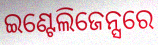
ଇଣ୍ଟେଲିଜେନ୍ସରେ